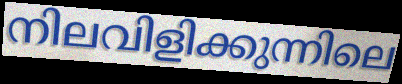
നിലവിളിക്കുന്നിലെ